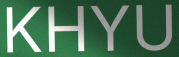
KHYU